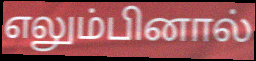
எலும்பினால்